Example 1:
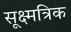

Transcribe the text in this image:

सूक्ष्मत्रिक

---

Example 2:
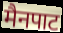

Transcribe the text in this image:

मैनपाट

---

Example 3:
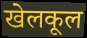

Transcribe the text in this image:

खेलकूल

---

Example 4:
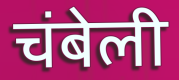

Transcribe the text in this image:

चंबेली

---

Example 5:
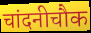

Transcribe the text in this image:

चांदनीचौक